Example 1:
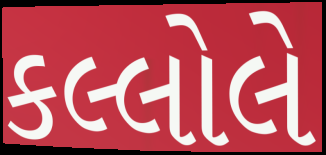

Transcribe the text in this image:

કલ્લોલે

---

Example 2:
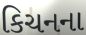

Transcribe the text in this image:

કિચનના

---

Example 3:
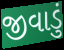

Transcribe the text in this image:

જીવાડું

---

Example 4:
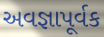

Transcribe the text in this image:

અવજ્ઞાપૂર્વક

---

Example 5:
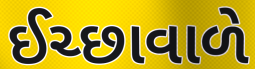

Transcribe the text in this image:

ઈચ્છાવાળે